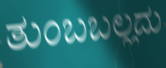
ತುಂಬಬಲ್ಲದು